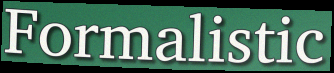
Formalistic